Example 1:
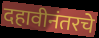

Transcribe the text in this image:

दहावीनंतरचे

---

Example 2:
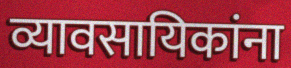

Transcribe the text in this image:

व्यावसायिकांना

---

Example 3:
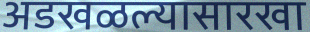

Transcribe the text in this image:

अडखळल्यासारखा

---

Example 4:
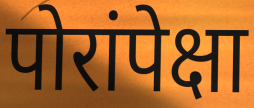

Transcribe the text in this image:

पोरांपेक्षा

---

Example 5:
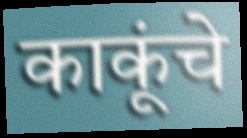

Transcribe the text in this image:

काकूंचे